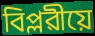
বিপ্লৱীয়ে